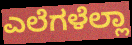
ಎಲೆಗಳೆಲ್ಲಾ